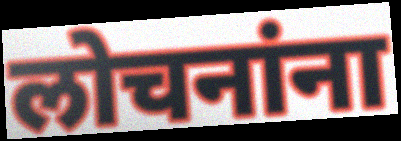
लोचनांना